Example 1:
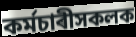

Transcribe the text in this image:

কৰ্মচাৰীসকলক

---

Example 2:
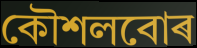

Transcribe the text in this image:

কৌশলবোৰ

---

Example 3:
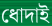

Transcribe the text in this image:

ধোদাই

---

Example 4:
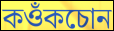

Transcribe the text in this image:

কওঁকচোন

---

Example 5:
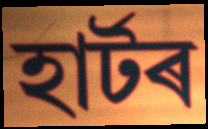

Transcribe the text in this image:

হাৰ্টৰ